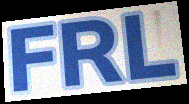
FRL